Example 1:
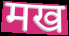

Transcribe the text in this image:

मख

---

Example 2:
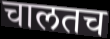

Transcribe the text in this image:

चालतच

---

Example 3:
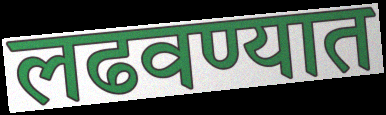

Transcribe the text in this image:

लढवण्यात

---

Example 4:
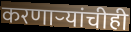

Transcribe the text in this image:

करणाऱ्यांचीही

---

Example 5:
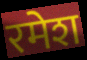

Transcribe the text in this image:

रमेश